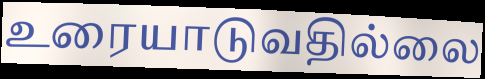
உரையாடுவதில்லை